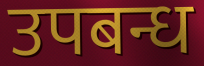
उपबन्ध